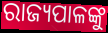
ରାଜ୍ୟପାଳଙ୍କୁ